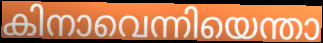
കിനാവെന്നിയെന്താ